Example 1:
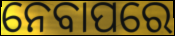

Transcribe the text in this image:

ନେବାପରେ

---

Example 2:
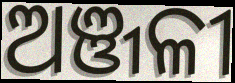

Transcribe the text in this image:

ଅଞ୍ଜଳୀ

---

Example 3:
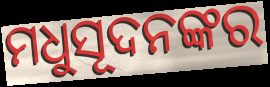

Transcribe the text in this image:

ମଧୁସୂଦନଙ୍କର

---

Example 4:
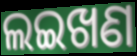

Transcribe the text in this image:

ଲଇଖଣ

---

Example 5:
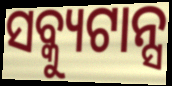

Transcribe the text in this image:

ସବ୍କ୍ୟୁଟାନ୍ସ